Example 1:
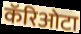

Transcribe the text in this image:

कॅरिओटा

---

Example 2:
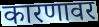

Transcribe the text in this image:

कारणावर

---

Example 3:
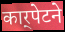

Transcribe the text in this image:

कार्पेटने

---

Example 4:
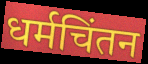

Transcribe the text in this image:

धर्मचिंतन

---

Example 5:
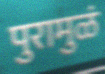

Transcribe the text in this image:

पुरामुळं